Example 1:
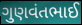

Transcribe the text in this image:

ગુણવંતભાઈ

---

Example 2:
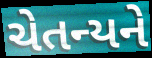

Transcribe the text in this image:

ચેતન્યને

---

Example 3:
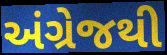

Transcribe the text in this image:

અંગ્રેજથી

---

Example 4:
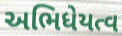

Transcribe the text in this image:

અભિધેયત્વ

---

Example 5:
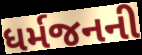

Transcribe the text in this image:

ધર્મજનની